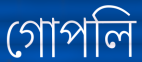
গোপলি